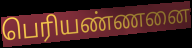
பெரியண்ணனை